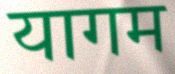
यागम